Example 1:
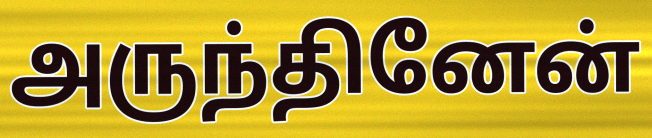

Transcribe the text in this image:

அருந்தினேன்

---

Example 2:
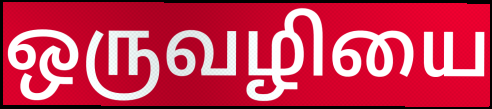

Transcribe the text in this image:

ஒருவழியை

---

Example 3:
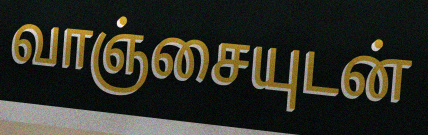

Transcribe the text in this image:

வாஞ்சையுடன்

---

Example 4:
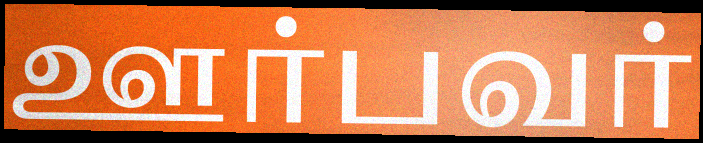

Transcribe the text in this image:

ஊர்பவர்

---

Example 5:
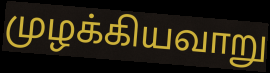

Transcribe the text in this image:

முழக்கியவாறு